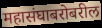
महासंघाबरोबरील